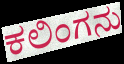
ಕಲಿಂಗನು